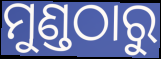
ମୁଣ୍ଡଠାରୁ